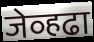
जेव्हढा